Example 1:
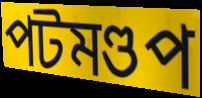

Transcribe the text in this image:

পটমণ্ডপ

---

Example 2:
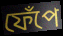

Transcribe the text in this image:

ফেঁপে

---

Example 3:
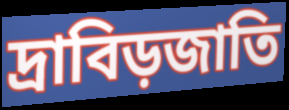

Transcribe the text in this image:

দ্রাবিড়জাতি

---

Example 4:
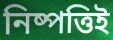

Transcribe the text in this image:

নিষ্পত্তিই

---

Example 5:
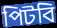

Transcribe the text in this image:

পিটবি